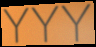
YYY